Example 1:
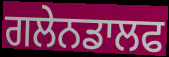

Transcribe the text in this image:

ਗਲੇਨਡਾਲਫ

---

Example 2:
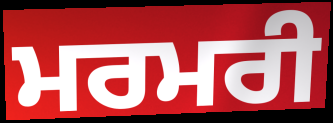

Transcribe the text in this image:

ਮਰਮਰੀ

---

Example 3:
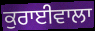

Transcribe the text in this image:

ਕੁਰਾਈਵਾਲਾ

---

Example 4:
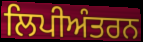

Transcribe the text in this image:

ਲਿਪੀਅੰਤਰਨ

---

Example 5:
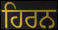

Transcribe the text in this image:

ਹਿਰਨ